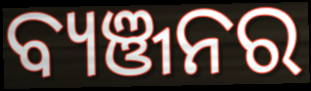
ବ୍ୟଞ୍ଜନର